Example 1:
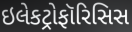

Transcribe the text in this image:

ઇલેકટ્રોફૉરિસિસ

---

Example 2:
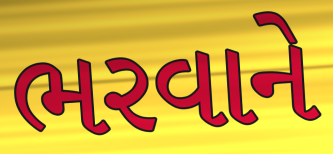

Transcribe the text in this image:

ભરવાને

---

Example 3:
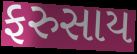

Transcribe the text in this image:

ફરુસાય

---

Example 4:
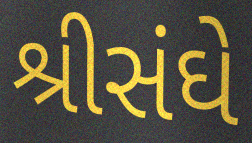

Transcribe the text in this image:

શ્રીસંઘે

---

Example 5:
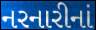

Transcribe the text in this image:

નરનારીનાં